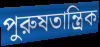
পুরুষতান্ত্রিক